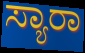
ಸ್ಯಾರಾ